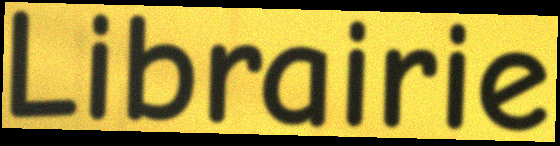
Librairie